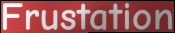
Frustation